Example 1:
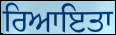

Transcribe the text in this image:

ਰਿਆਇਤਾ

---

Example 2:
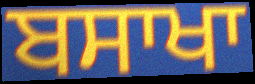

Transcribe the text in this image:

ਬਸਾਖਾ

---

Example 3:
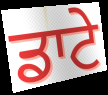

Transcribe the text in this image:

ਡਾਟੇ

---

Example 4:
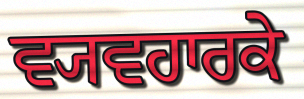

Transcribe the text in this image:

ਵ੍ਯਵਹਾਰਕੇ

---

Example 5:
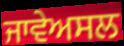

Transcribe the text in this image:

ਜਾਵੇਅਸਲ